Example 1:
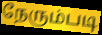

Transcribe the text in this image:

நேரும்படி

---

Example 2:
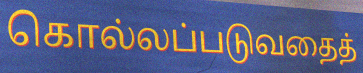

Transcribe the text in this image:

கொல்லப்படுவதைத்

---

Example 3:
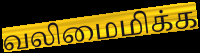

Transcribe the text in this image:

வலிமைமிக்க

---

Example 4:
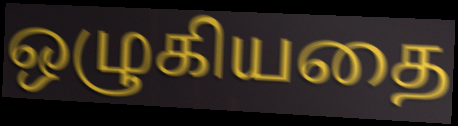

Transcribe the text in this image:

ஒழுகியதை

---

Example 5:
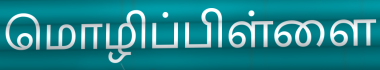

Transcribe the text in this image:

மொழிப்பிள்ளை